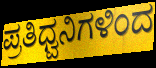
ಪ್ರತಿಧ್ವನಿಗಳಿಂದ